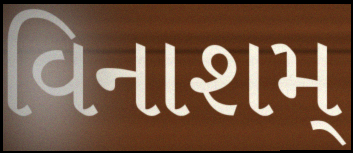
વિનાશમ્